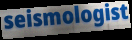
seismologist